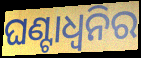
ଘଣ୍ଟାଧ୍ୱନିର